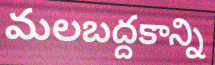
మలబద్దకాన్ని